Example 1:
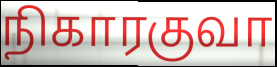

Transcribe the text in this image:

நிகாரகுவா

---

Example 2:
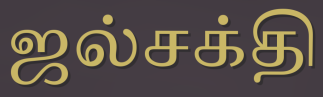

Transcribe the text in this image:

ஜல்சக்தி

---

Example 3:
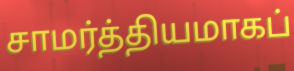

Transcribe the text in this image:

சாமர்த்தியமாகப்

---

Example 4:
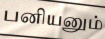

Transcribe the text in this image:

பனியனும்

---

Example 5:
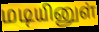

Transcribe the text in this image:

மடியினுள்